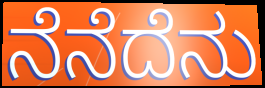
ನೆನೆದೆನು